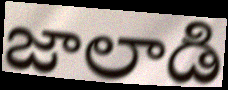
జాలాడి